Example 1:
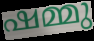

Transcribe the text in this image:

ഷമ്മു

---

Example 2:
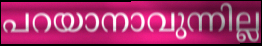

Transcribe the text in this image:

പറയാനാവുന്നില്ല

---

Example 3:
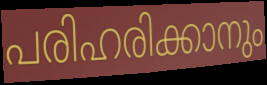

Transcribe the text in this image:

പരിഹരിക്കാനും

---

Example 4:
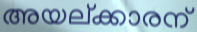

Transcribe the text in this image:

അയല്ക്കാരന്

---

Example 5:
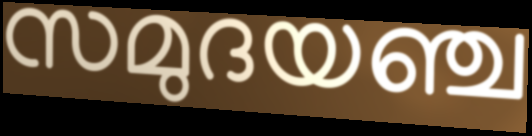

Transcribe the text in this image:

സമുദയഞ്ച